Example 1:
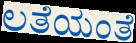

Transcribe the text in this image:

ಲತೆಯಂತೆ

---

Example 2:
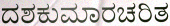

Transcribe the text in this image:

ದಶಕುಮಾರಚರಿತ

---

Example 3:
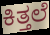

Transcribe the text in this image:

ಕಿತ್ತಲೆ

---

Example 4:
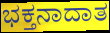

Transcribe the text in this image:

ಭಕ್ತನಾದಾತ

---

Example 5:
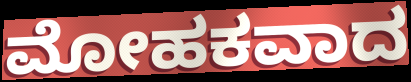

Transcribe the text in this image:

ಮೋಹಕವಾದ